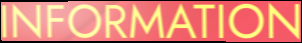
INFORMATION